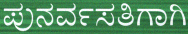
ಪುನರ್ವಸತಿಗಾಗಿ